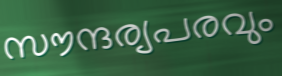
സൗന്ദര്യപരവും